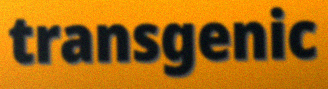
transgenic